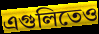
এগুলিতেও